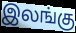
இலங்கு